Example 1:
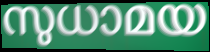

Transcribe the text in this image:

സുധാമയ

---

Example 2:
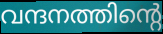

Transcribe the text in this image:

വന്ദനത്തിന്റെ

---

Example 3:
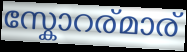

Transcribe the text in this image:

സ്കോറര്മാര്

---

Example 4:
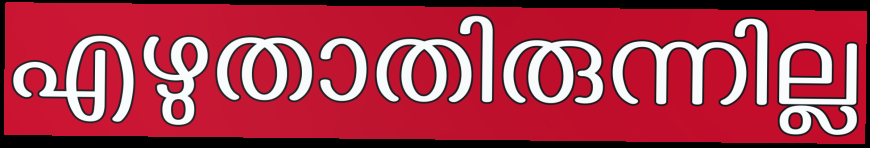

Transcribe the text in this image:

എഴുതാതിരുന്നില്ല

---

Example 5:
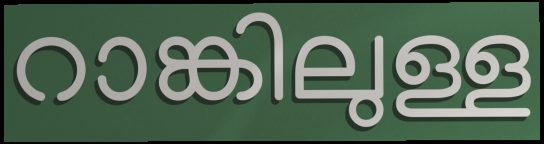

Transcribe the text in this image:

റാങ്കിലുള്ള